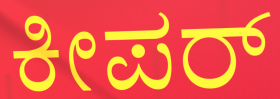
ಕೀಪರ್